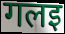
गलइ